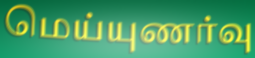
மெய்யுணர்வு